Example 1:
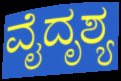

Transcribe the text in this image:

ವೈದೃಶ್ಯ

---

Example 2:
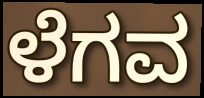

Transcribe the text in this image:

ಳೆಗವ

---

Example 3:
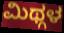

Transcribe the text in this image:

ಮಿಥ್ಗಳ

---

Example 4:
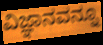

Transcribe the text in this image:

ವಿಜ್ಞಾನವನ್ನೂ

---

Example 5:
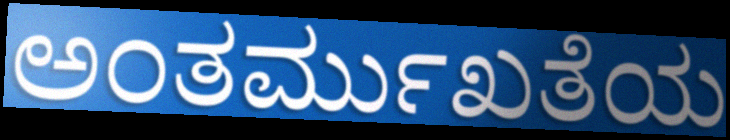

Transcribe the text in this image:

ಅಂತರ್ಮುಖತೆಯ